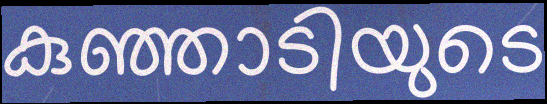
കുഞ്ഞാടിയുടെ